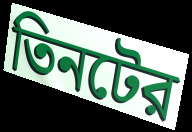
তিনটের